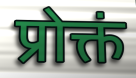
प्रोक्तं